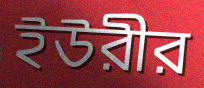
ইউরীর